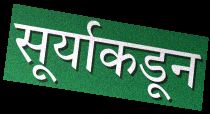
सूर्याकडून